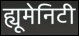
ह्यूमेनिटी